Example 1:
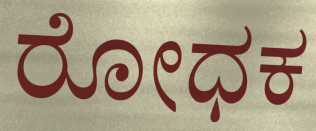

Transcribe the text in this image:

ರೋಧಕ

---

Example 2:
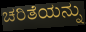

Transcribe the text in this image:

ಚರಿತೆಯನ್ನು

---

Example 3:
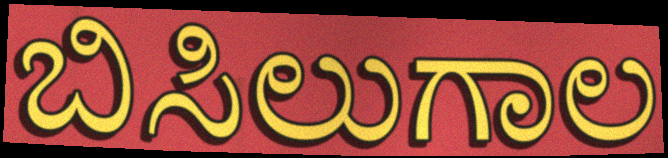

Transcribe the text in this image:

ಬಿಸಿಲುಗಾಲ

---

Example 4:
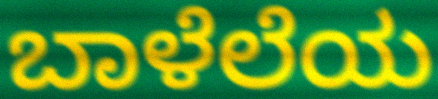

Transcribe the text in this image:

ಬಾಳೆಲೆಯ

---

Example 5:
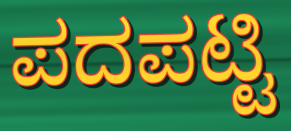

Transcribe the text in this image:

ಪದಪಟ್ಟಿ